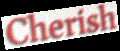
Cherish